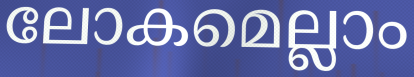
ലോകമെല്ലാം